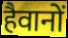
हैवानों